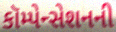
કૉમ્પેન્સેશનની